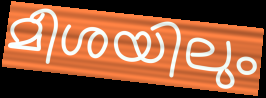
മീശയിലും